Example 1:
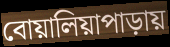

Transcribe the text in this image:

বোয়ালিয়াপাড়ায়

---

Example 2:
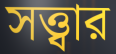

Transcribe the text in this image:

সত্ত্বার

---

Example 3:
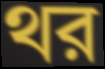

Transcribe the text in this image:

থর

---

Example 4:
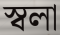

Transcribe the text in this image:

স্বলা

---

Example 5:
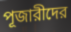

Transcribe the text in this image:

পূজারীদের